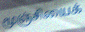
மூஞ்சியைக்